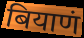
बियाणं